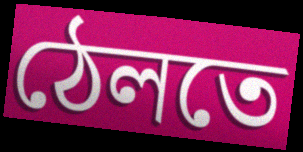
ঠেলতে